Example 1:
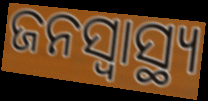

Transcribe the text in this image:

ଜନସ୍ୱାସ୍ଥ୍ୟ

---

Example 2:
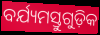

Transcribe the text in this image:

ବର୍ଯ୍ୟମସ୍ତୁଗୁଡ଼ିକ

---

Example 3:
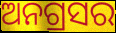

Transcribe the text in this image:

ଅନଗ୍ରସର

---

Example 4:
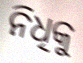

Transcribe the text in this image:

ନିଧିକୁ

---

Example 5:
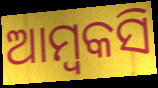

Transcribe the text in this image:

ଆମ୍ବକସି